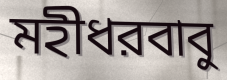
মহীধরবাবু